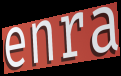
enra